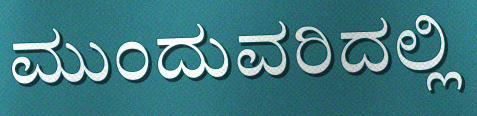
ಮುಂದುವರಿದಲ್ಲಿ